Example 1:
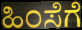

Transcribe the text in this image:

ಹಿಂಸೆಗೆ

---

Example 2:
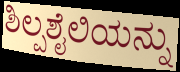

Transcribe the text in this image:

ಶಿಲ್ಪಶೈಲಿಯನ್ನು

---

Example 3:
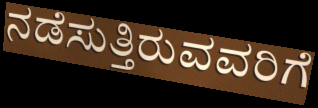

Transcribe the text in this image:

ನಡೆಸುತ್ತಿರುವವರಿಗೆ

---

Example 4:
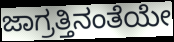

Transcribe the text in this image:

ಜಾಗ್ರತ್ತಿನಂತೆಯೇ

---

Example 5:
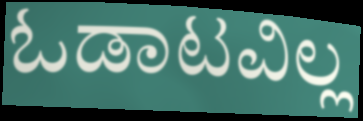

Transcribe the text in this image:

ಓಡಾಟವಿಲ್ಲ